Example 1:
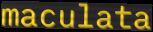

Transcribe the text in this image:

maculata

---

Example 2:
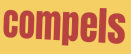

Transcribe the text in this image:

compels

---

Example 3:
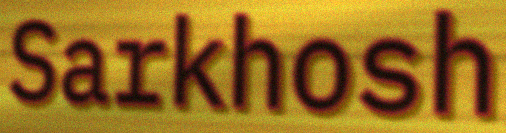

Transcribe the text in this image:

Sarkhosh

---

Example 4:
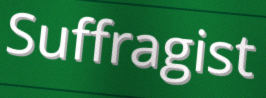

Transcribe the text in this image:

Suffragist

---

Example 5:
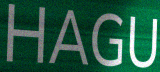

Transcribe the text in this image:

HAGU